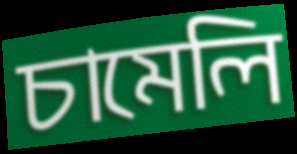
চামেলি